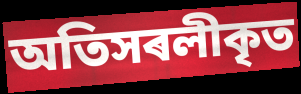
অতিসৰলীকৃত